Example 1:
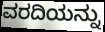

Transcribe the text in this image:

ವರದಿಯನ್ನು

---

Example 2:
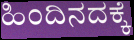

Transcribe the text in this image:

ಹಿಂದಿನದಕ್ಕೆ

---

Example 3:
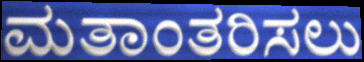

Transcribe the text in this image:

ಮತಾಂತರಿಸಲು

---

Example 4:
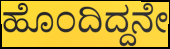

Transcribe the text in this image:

ಹೊಂದಿದ್ದನೇ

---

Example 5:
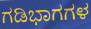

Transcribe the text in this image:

ಗಡಿಭಾಗಗಳ